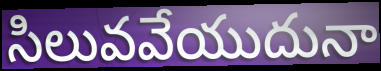
సిలువవేయుదునా